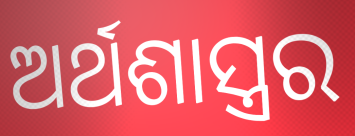
ଅର୍ଥଶାସ୍ତ୍ରର